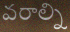
వరాల్ని